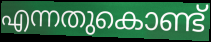
എന്നതുകൊണ്ട്